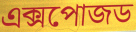
এক্সপোজড